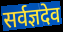
सर्वज्ञदेव